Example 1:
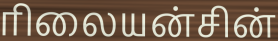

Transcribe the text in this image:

ரிலையன்சின்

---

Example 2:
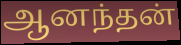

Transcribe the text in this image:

ஆனந்தன்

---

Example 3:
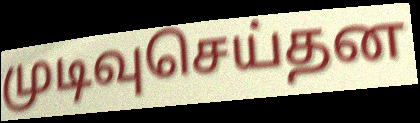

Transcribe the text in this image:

முடிவுசெய்தன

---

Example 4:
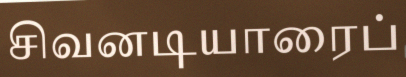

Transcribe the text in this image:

சிவனடியாரைப்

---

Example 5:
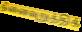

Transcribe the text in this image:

நினைவுறுத்திக்